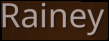
Rainey